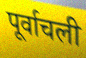
पूर्वाचली